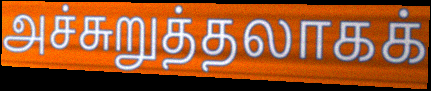
அச்சுறுத்தலாகக்